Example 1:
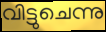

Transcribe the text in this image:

വിട്ടുചെന്നു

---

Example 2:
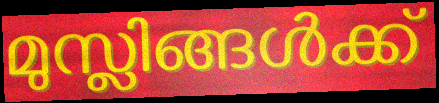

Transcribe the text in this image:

മുസ്ലിങ്ങൾക്ക്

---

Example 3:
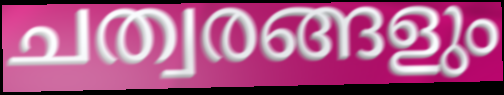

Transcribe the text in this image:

ചത്വരങ്ങളും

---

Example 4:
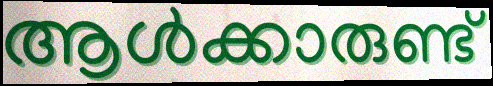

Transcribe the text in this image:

ആൾക്കാരുണ്ട്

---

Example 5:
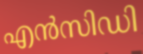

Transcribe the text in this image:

എൻസിഡി